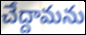
చేద్దామను